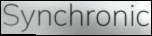
Synchronic